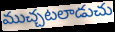
ముచ్చటలాడుచు